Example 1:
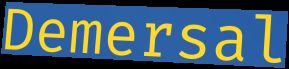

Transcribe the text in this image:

Demersal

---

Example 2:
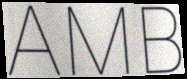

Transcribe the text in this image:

AMB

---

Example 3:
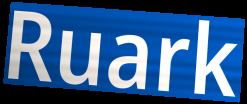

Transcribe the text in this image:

Ruark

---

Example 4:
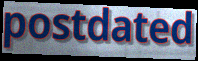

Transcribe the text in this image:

postdated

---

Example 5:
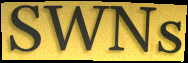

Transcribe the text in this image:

SWNs